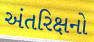
અંતરિક્ષનો